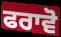
ਫਰਾਵੋ